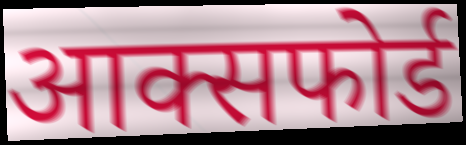
आक्सफोर्ड